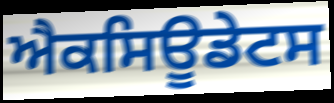
ਐਕਸਿਊਡੇਟਸ